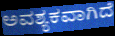
ಅವಶ್ಯಕವಾಗಿದೆ